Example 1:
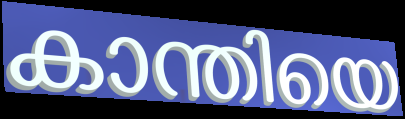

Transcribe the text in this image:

കാന്തിയെ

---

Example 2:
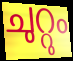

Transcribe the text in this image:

ചുറ്റും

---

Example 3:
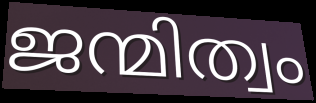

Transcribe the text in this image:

ജന്മിത്വം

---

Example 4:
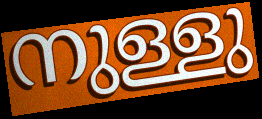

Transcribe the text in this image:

നുള്ളു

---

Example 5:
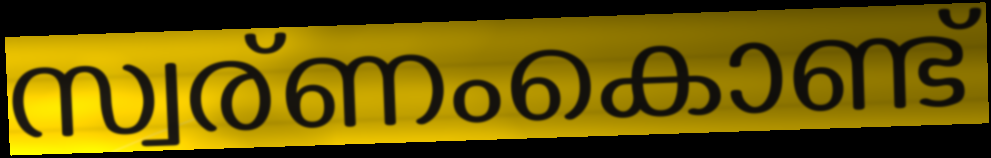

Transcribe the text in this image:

സ്വര്ണംകൊണ്ട്